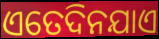
ଏତେଦିନଯାଏ